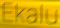
Ekalu